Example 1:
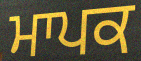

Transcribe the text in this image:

ਮਾਪਕ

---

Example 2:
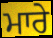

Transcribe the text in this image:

ਮਾਰੇ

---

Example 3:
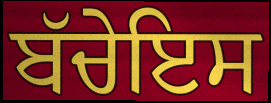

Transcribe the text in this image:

ਬੱਚੇਇਸ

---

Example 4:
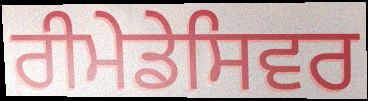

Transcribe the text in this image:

ਰੀਮੇਡੇਸਿਵਰ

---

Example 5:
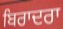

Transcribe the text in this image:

ਬਿਰਾਦਰਾ